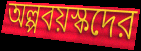
অল্পবয়স্কদের